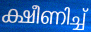
ക്ഷീണിച്ച്